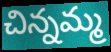
చిన్నమ్మ